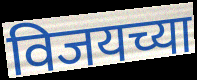
विजयच्या